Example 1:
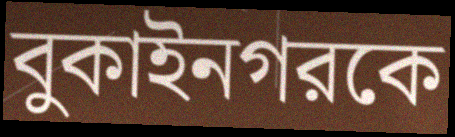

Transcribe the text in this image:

বুকাইনগরকে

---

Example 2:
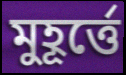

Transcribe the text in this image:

মুহূর্ত্তে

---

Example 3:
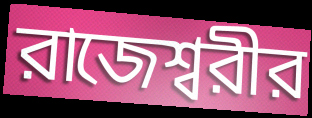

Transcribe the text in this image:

রাজেশ্বরীর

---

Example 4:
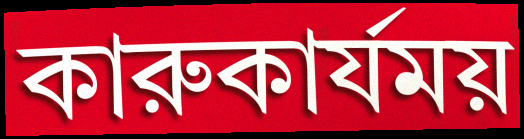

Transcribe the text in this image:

কারুকার্যময়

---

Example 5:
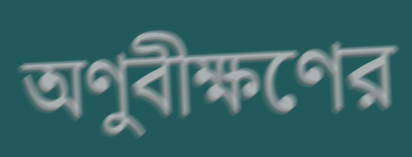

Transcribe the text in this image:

অণুবীক্ষণের